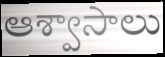
ఆశ్వాసాలు